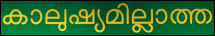
കാലുഷ്യമില്ലാത്ത